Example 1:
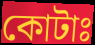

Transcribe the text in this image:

কোটাঃ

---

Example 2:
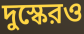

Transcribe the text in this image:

দুস্কেরও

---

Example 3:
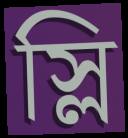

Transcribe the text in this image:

স্লি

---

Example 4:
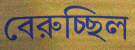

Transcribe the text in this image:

বেরুচ্ছিল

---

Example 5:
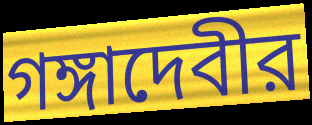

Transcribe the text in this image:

গঙ্গাদেবীর